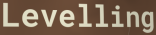
Levelling